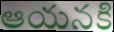
ఆయనకి